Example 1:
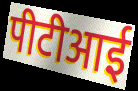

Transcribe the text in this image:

पीटीआई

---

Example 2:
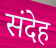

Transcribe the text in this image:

संदेह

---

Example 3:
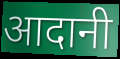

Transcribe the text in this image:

आदानी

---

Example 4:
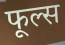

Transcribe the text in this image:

फूल्स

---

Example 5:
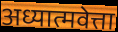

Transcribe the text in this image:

अध्यात्मवेत्ता